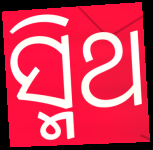
ସ୍ମିଥ